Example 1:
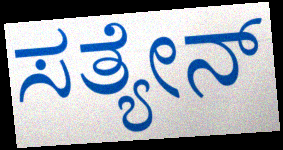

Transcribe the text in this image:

ಸತ್ಯೇನ್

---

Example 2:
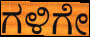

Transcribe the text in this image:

ಗಳಿಗೇ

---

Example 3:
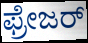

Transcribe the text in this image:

ಫ್ರೇಜರ್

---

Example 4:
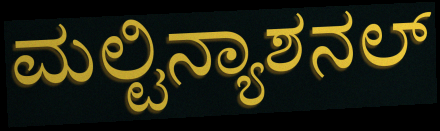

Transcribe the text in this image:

ಮಲ್ಟಿನ್ಯಾಶನಲ್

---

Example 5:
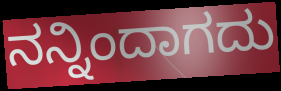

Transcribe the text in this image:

ನನ್ನಿಂದಾಗದು